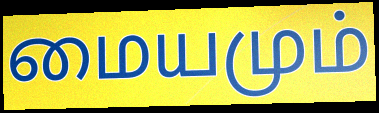
மையமும்